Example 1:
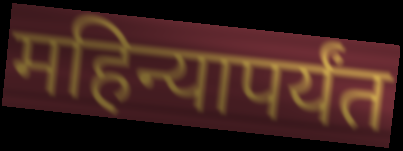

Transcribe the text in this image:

महिन्यापर्यंत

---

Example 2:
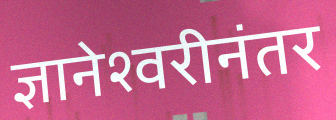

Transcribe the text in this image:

ज्ञानेश्वरीनंतर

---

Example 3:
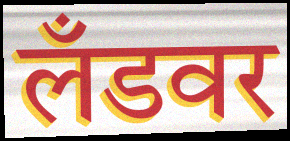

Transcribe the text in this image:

लँडवर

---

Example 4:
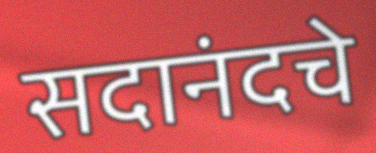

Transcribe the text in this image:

सदानंदचे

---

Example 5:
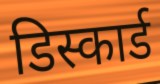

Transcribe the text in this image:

डिस्कार्ड